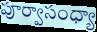
పూర్వాసంధ్యా